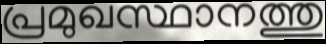
പ്രമുഖസ്ഥാനത്തു